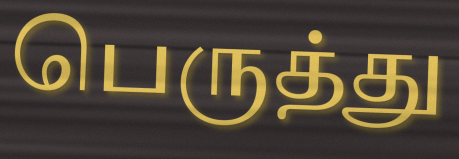
பெருத்து